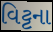
વિટ્ટના